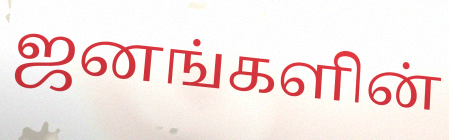
ஜனங்களின்